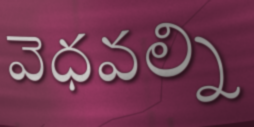
వెధవల్ని